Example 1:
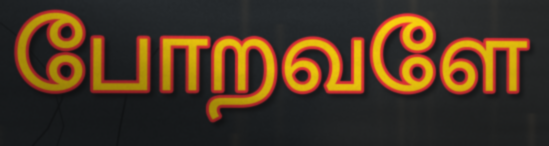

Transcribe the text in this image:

போறவளே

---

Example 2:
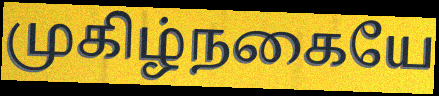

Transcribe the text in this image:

முகிழ்நகையே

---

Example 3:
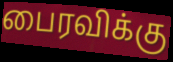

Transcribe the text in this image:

பைரவிக்கு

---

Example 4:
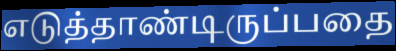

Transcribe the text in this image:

எடுத்தாண்டிருப்பதை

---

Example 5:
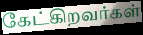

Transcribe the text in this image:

கேட்கிறவர்கள்